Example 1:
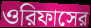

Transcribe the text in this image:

ওরিফাসের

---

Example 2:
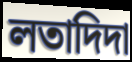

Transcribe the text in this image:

লতাদিদা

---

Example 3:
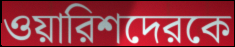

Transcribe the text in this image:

ওয়ারিশদেরকে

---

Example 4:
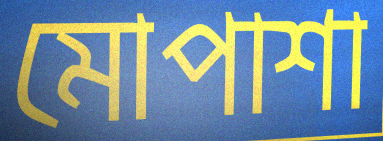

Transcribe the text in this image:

মোপাশা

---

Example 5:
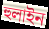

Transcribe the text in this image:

হুলাইন